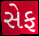
સેફ